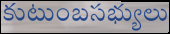
కుటుంబసభ్యులు